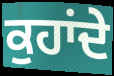
ਕੁਹਾਂਦੇ